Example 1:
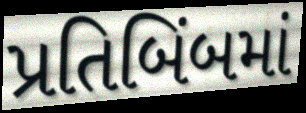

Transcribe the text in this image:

પ્રતિબિંબમાં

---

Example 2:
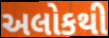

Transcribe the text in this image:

અલોકથી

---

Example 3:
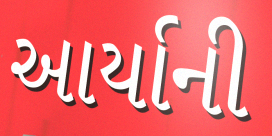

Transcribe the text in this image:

આર્યાની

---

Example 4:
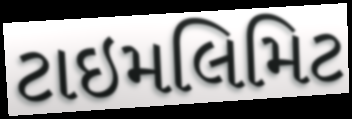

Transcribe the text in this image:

ટાઇમલિમિટ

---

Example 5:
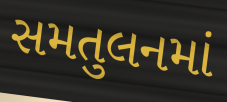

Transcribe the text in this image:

સમતુલનમાં